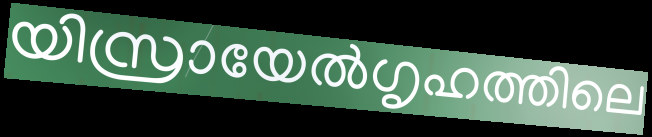
യിസ്രായേൽഗൃഹത്തിലെ